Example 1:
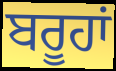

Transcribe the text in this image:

ਬਰੂਹਾਂ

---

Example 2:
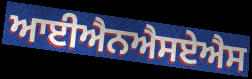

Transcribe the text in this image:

ਆਈਐਨਐਸਏਐਸ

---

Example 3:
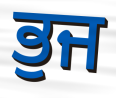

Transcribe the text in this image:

ਭੁਜ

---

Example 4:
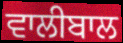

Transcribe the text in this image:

ਵਾਲੀਬਾਲ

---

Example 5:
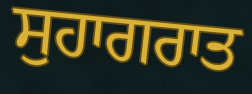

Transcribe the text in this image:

ਸੁਹਾਗਰਾਤ